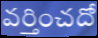
వర్తించదో